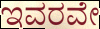
ಇವರವೇ